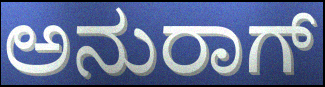
ಅನುರಾಗ್